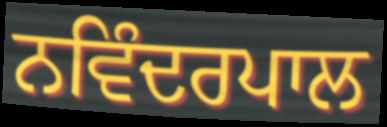
ਨਵਿੰਦਰਪਾਲ